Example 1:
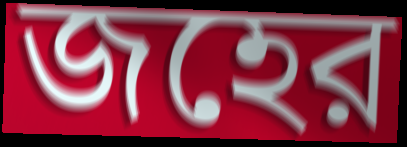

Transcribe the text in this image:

জহের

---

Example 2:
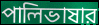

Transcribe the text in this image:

পালিভাষার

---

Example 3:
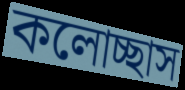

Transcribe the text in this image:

কলোচ্ছাস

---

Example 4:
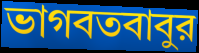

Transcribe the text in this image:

ভাগবতবাবুর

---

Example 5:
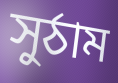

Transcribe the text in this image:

সুঠাম